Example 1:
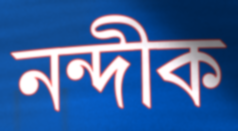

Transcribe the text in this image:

নন্দীক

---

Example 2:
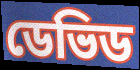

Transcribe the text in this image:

ডেভিড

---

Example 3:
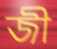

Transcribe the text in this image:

জী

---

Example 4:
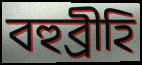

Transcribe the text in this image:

বহুব্ৰীহি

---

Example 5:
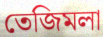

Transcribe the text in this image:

তেজিমলা